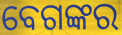
ବେଗଙ୍କର